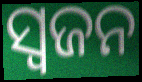
ସ୍ୱଜନ